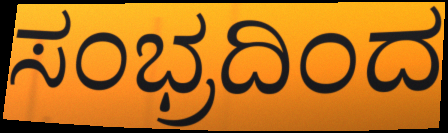
ಸಂಭ್ರದಿಂದ